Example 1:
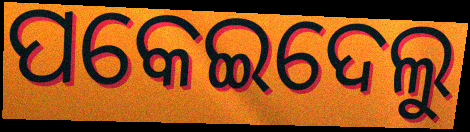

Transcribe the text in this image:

ପକେଇଦେଲୁ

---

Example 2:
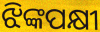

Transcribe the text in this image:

ଝିଙ୍କପକ୍ଷୀ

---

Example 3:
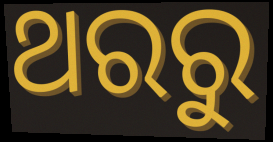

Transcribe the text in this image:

ଥରରୁ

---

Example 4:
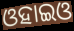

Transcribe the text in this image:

ଓହାଇଓ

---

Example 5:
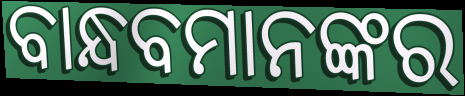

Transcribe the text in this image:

ବାନ୍ଧବମାନଙ୍କର